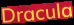
Dracula